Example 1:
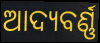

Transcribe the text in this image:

ଆଦ୍ୟବର୍ଣ୍ଣ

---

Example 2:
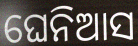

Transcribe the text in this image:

ଘେନିଆସ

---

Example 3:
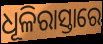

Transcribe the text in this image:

ଧୂଳିରାସ୍ତାରେ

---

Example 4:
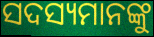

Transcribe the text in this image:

ସଦସ୍ୟମାନଙ୍କୁ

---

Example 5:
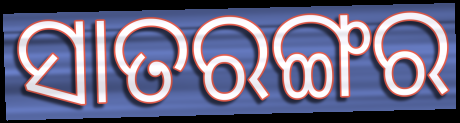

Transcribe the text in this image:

ସାତରଙ୍ଗର